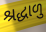
શ્રદ્ધાળુ